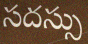
సదస్సు